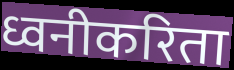
ध्वनीकरिता